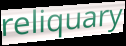
reliquary